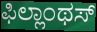
ಫಿಲ್ಲಾಂಥಸ್